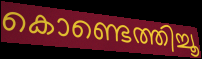
കൊണ്ടെത്തിച്ചൂ